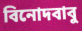
বিনোদবাবু